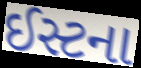
ઈસ્ટના